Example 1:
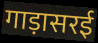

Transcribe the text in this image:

गाड़ासरई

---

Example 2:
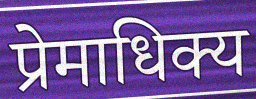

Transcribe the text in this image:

प्रेमाधिक्य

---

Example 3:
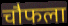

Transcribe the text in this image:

चौफला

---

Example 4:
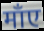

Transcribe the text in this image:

माँए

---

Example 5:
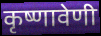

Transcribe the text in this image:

कृष्णावेणी